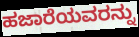
ಹಜಾರೆಯವರನ್ನು